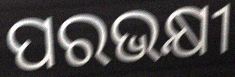
ପରଭକ୍ଷୀ